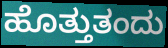
ಹೊತ್ತುತಂದು